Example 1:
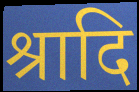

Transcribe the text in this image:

श्रादि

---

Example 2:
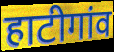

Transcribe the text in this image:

हाटीगांव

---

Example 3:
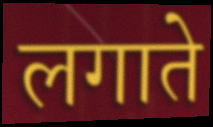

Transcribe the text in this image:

लगाते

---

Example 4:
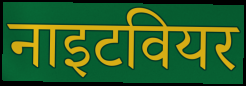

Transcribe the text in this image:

नाइटवियर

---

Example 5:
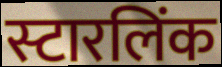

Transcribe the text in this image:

स्‍टारलिंक